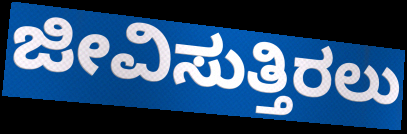
ಜೀವಿಸುತ್ತಿರಲು